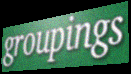
groupings